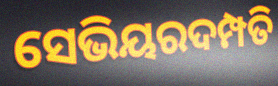
ସେଭିୟରଦମ୍ପତି